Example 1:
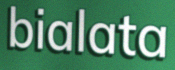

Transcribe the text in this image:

bialata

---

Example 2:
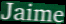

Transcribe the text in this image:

Jaime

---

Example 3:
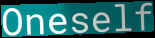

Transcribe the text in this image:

Oneself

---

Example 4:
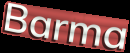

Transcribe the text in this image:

Barma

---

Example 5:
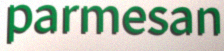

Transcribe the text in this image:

parmesan